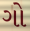
ગો